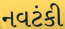
નવટંકી